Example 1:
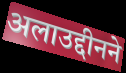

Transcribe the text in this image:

अलाउद्दीनने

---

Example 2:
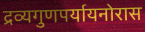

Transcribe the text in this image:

द्रव्यगुणपर्यायनोरास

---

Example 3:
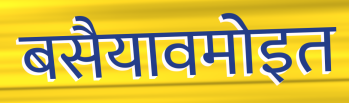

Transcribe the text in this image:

बसैयावमोइत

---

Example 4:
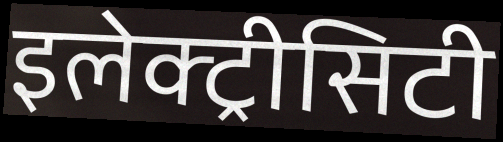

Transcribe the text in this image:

इलेक्ट्रीसिटी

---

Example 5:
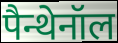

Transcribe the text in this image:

पैन्थेनॉल